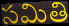
సమితి